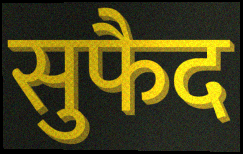
सुफैद